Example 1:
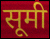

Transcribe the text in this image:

सूमी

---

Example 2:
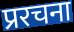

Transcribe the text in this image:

प्ररचना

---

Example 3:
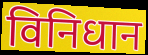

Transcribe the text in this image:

विनिधान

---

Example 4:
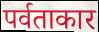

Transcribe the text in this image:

पर्वताकार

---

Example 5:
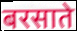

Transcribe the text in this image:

बरसाते